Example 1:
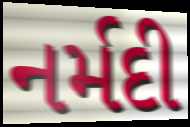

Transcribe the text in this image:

નર્મદી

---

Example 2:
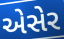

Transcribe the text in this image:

એસેર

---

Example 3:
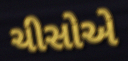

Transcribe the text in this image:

ચીસોએ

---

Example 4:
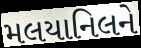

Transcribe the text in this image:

મલયાનિલને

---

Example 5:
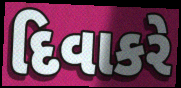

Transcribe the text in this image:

દિવાકરે